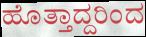
ಹೊತ್ತಾದ್ದರಿಂದ